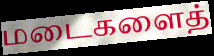
மடைகளைத்